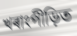
খৰাংপীড়িত